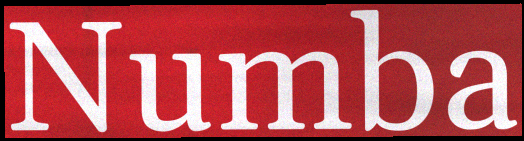
Numba